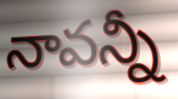
నావన్నీ